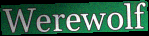
Werewolf